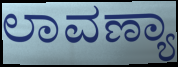
ಲಾವಣ್ಯಾ